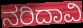
ನರಿದಾವಿ